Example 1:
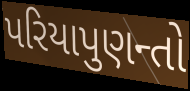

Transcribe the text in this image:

પરિયાપુણન્તો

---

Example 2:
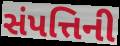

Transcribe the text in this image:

સંપત્તિની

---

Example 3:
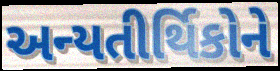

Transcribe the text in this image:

અન્યતીર્થિકોને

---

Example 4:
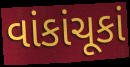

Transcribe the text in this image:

વાંકાંચૂકાં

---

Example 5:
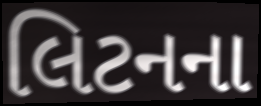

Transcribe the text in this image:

લિટનના